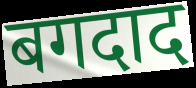
बगदाद